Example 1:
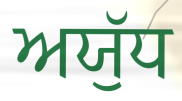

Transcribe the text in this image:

ਅਯੁੱਧ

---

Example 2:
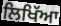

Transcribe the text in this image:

ਲਿਖਿੱਆ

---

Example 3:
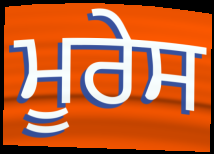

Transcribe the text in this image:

ਮੂਰੇਸ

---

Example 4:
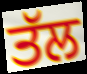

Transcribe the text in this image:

ਤੱਲ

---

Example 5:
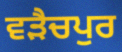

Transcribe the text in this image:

ਵੜੈਚਪੁਰ